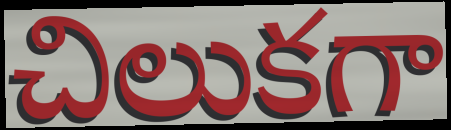
చిలుకగా